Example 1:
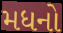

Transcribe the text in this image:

મધનો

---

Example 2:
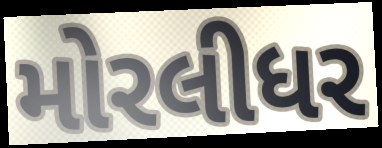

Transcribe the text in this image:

મોરલીધર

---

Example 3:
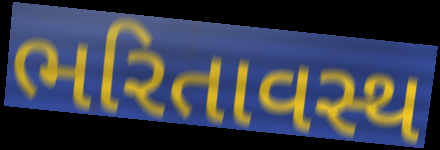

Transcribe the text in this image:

ભરિતાવસ્થ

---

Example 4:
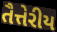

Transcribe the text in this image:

તૈત્તેરીય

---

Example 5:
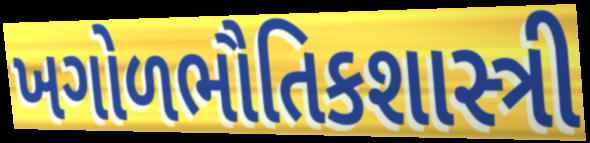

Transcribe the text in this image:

ખગોળભૌતિકશાસ્ત્રી